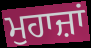
ਮੁਹਾਜ਼ਾਂ